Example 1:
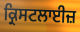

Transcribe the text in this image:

ਕ੍ਰਿਸਟਲਾਈਜ਼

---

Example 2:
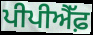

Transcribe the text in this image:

ਪੀਪੀਐੱਫ਼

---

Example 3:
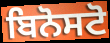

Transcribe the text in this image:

ਬਿਨੋਸਟੋ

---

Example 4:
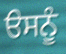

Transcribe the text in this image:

ੳਸਨੂੰ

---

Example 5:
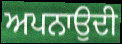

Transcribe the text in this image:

ਅਪਨਾਉਦੀ